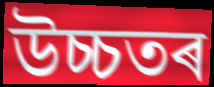
উচ্চতৰ